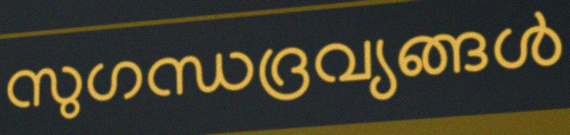
സുഗന്ധദ്രവ്യങ്ങൾ